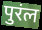
पुरंल